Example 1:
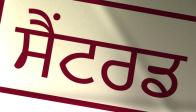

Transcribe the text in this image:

ਸੈਂਟਰਡ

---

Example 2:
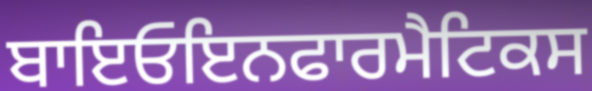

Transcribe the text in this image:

ਬਾਇਓਇਨਫਾਰਮੈਟਿਕਸ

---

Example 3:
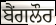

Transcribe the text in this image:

ਬੈੰਗਲੌਰ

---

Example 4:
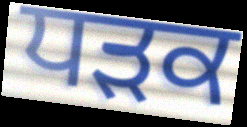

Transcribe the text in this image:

ਧਡ਼ਕ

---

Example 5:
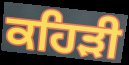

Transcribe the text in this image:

ਕਹਿੜੀ